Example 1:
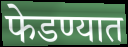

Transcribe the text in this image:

फेडण्यात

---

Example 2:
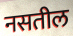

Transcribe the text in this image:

नसतील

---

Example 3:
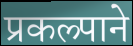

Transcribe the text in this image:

प्रकल्पाने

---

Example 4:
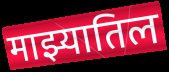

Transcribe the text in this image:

माझ्यातिल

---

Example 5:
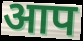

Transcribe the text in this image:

आप